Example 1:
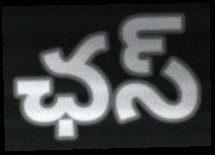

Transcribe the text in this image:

ఛస్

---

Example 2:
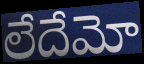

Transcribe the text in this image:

లేదేమో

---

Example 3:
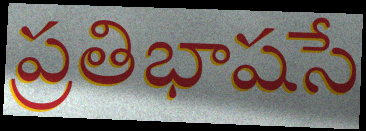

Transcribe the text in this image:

ప్రతిభాషసే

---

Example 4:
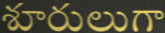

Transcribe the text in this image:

శూరులుగా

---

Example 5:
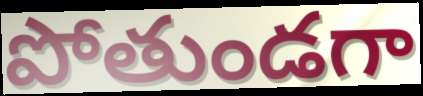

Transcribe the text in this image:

పోతుండగా